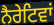
ਨੈਰੇਟਿਵਾਂ